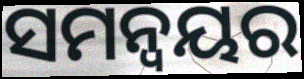
ସମନ୍ଵୟର